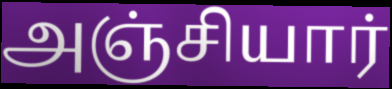
அஞ்சியார்